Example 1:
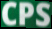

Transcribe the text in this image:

CPS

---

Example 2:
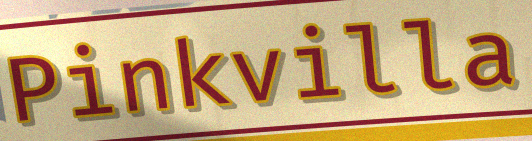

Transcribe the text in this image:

Pinkvilla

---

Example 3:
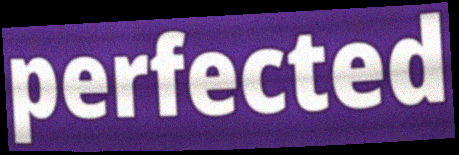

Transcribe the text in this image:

perfected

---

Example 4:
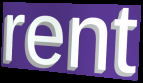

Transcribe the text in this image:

rent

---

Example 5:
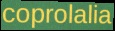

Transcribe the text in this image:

coprolalia